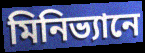
মিনিভ্যানে